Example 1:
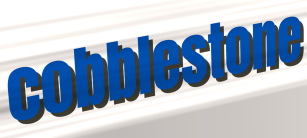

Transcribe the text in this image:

cobblestone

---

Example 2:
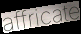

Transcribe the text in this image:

affricate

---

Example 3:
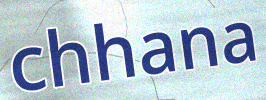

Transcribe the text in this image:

chhana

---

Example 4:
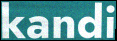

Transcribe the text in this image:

kandi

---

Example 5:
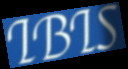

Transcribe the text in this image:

IBIS